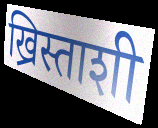
ख्रिस्ताशी